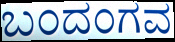
ಬಂದಂಗವ